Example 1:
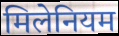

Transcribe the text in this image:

मिलेनियम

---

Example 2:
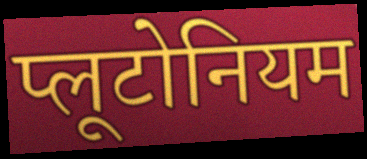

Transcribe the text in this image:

प्लूटोनियम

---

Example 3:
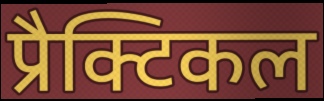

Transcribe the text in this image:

प्रैक्टिकल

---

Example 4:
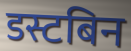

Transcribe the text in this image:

डस्टबिन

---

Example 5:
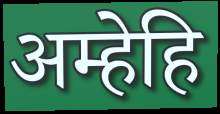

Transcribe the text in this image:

अम्हेहि